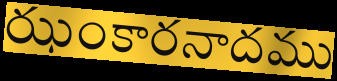
ఝంకారనాదము